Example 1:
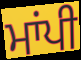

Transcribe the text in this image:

ਮਾਂਪੀ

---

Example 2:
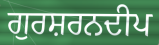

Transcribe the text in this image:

ਗੁਰਸ਼ਰਨਦੀਪ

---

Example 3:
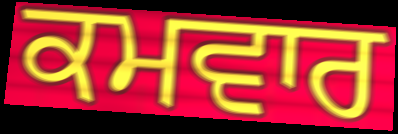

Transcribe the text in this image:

ਕਮਵਾਰ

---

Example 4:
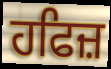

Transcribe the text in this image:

ਹਫਿਜ਼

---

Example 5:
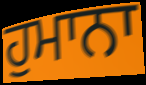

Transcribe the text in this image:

ਹੁਮਾਨਾ